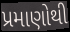
પ્રમાણોથી